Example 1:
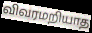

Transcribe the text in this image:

விவரமறியாத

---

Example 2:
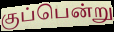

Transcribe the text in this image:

குப்பென்று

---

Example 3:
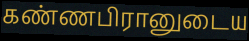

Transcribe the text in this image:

கண்ணபிரானுடைய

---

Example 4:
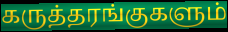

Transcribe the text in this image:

கருத்தரங்குகளும்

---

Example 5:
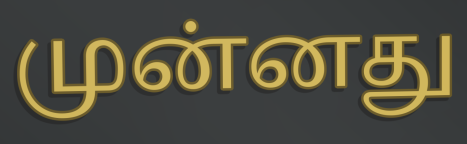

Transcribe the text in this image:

முன்னது